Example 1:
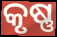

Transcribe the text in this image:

କୃଷ୍ଣ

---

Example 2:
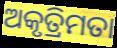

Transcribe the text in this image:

ଅକୃତ୍ରିମତା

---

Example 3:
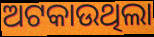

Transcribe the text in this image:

ଅଟକାଉଥିଲା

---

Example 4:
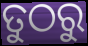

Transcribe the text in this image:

ତୁଠରୁ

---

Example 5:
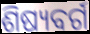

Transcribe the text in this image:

ଶିଷ୍ୟବର୍ଗ